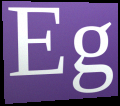
Eg